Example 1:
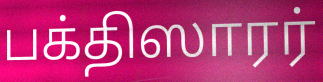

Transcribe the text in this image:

பக்திஸாரர்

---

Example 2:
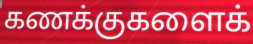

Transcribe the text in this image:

கணக்குகளைக்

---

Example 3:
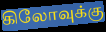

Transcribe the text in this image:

கிலோவுக்கு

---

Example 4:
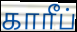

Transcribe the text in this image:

காரீப்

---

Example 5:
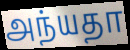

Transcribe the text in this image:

அந்யதா